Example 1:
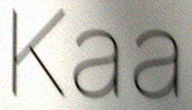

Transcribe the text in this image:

Kaa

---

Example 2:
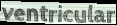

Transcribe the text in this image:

ventricular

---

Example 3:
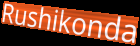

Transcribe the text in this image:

Rushikonda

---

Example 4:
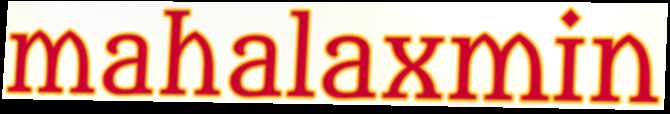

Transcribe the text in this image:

mahalaxmin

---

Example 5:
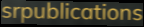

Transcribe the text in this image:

srpublications